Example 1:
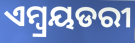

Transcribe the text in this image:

ଏମ୍ବ୍ରୟଡରୀ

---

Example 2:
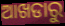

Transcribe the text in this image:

ଆଖଡାରୁ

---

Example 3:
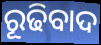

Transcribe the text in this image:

ରୂଢିବାଦ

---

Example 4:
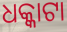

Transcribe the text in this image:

ଧକ୍କାଟା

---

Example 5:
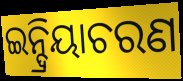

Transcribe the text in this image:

ଇନ୍ଦ୍ରିୟାଚରଣ